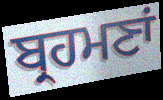
ਬ੍ਰਹਮਣਾਂ